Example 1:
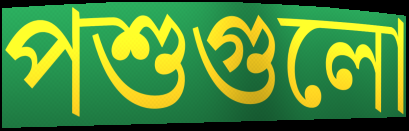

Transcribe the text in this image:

পশুগুলো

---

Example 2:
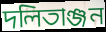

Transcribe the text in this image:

দলিতাঞ্জন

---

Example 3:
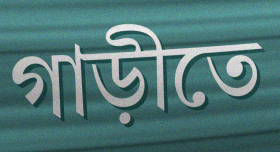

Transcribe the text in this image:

গাড়ীতে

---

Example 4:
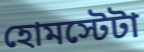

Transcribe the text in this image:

হোমস্টেটা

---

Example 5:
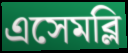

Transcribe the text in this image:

এসেমব্লি